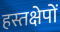
हस्तक्षेपों